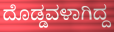
ದೊಡ್ಡವಳಾಗಿದ್ದ